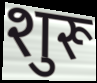
शुरू